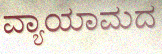
ವ್ಯಾಯಾಮದ